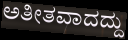
ಅತೀತವಾದದ್ದು